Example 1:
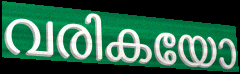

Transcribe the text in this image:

വരികയോ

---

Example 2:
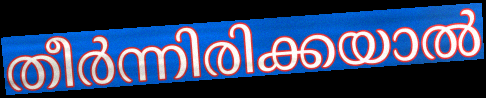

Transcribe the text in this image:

തീർന്നിരിക്കയാൽ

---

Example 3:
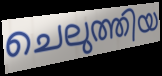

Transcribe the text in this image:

ചെലുത്തിയ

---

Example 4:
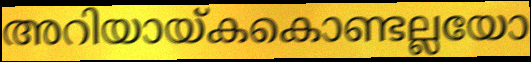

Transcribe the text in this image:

അറിയായ്കകൊണ്ടല്ലയോ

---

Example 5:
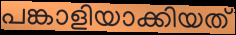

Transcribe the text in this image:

പങ്കാളിയാക്കിയത്